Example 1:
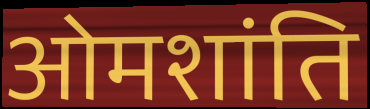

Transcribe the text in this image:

ओमशांति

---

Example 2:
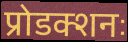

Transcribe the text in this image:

प्रोडक्शनः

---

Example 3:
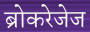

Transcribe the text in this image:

ब्रोकरेजेज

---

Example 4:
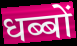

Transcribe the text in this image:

धब्बों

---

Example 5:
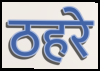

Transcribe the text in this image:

ठहरे